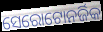
ସେରୋଟୋନର୍ଜିକ